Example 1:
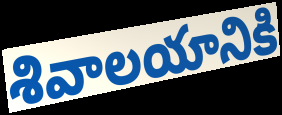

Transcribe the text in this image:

శివాలయానికి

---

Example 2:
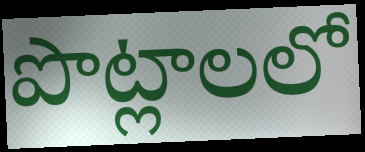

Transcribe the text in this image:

పొట్లాలలో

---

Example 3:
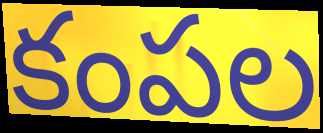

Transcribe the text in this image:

కంపల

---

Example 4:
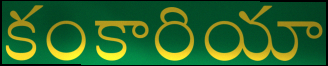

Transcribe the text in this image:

కంకారియా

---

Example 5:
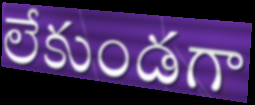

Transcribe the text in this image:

లేకుండగా